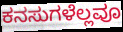
ಕನಸುಗಳೆಲ್ಲವೂ